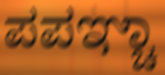
ಪಪಞ್ಚಾ